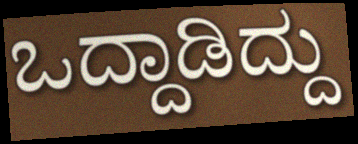
ಒದ್ದಾಡಿದ್ದು